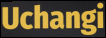
Uchangi